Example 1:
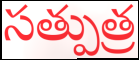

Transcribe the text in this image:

సత్పుత్ర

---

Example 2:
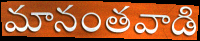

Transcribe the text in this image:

మానంతవాడి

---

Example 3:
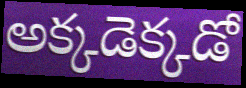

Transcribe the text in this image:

అక్కడెక్కడో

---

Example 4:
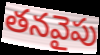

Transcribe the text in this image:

తనవైపు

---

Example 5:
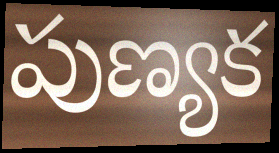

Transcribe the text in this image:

పుణ్యక